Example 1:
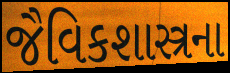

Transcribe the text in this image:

જૈવિકશાસ્ત્રના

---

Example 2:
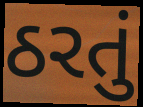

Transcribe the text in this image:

ઠરતું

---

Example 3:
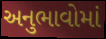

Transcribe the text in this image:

અનુભાવોમાં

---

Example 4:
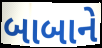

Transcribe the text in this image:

બાબાને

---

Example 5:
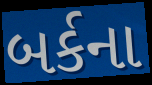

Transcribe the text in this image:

બર્કના